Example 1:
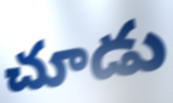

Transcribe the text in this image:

చూడు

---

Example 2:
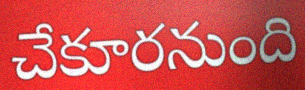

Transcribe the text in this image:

చేకూరనుంది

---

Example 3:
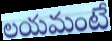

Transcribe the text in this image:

లయమంటే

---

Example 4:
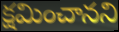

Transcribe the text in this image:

క్షమించానని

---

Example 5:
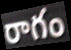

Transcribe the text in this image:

రాగం